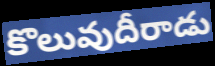
కొలువుదీరాడు